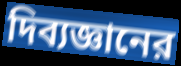
দিব্যজ্ঞানের